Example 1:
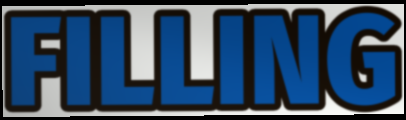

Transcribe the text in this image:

FILLING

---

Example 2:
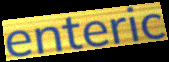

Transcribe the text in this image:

enteric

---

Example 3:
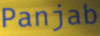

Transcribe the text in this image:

Panjab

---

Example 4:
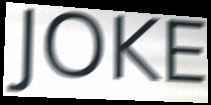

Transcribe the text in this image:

JOKE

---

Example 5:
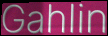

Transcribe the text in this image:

Gahlin